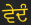
ਵੇਦੰ